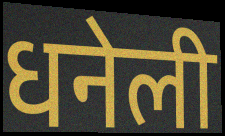
धनेली